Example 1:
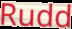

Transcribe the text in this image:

Rudd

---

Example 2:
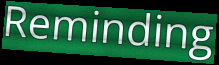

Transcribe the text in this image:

Reminding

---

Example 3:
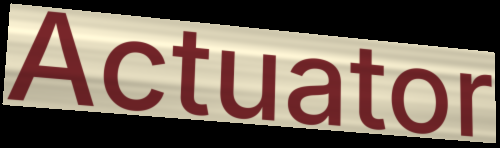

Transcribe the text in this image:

Actuator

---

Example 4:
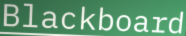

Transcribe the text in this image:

Blackboard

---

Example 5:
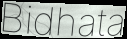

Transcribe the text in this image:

Bidhata